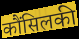
कौंसिलकी